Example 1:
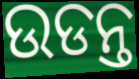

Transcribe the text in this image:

ଉଡନ୍ତ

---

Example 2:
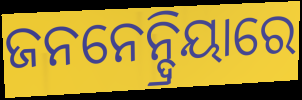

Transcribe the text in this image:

ଜନନେନ୍ଦ୍ରିୟାରେ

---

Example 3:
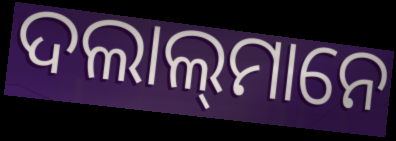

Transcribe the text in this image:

ଦଲାଲ୍‍ମାନେ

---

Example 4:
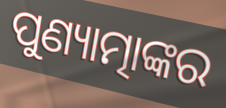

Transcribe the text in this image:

ପୁଣ୍ୟାତ୍ମାଙ୍କର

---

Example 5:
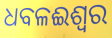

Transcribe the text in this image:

ଧବଳଈଶ୍ବର